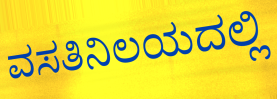
ವಸತಿನಿಲಯದಲ್ಲಿ